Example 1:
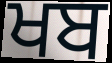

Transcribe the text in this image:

ਖਬ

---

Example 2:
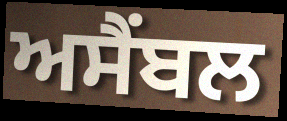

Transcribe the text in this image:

ਅਸੈਂਬਲ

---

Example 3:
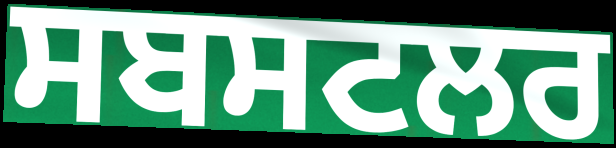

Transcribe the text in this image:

ਸਬਸਟਲਰ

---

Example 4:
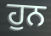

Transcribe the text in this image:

ਹੁਨ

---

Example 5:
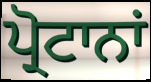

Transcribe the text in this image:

ਪ੍ਰੋਟਾਨਾਂ